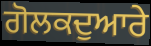
ਗੋਲਕਦੁਆਰੇ